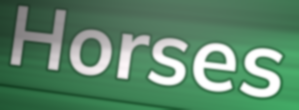
Horses